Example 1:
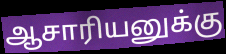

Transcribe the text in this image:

ஆசாரியனுக்கு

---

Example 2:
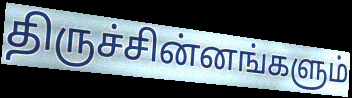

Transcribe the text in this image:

திருச்சின்னங்களும்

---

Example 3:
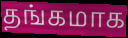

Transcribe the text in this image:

தங்கமாக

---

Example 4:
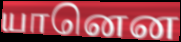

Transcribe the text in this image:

யானென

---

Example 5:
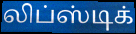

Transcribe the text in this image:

லிப்ஸ்டிக்